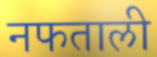
नफताली